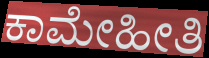
ಕಾಮೇಹೀತಿ